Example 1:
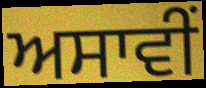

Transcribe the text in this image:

ਅਸਾਵੀਂ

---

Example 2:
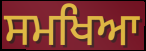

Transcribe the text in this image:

ਸਮਖਿਆ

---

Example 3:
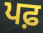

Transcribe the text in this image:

ਪਫ਼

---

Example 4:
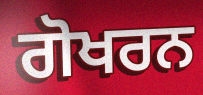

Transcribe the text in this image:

ਗੋਖਰਨ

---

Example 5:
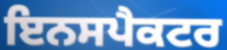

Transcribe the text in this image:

ਇਨਸਪੈਕਟਰ